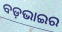
ବଡ଼ଭାଇର